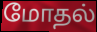
மோதல்